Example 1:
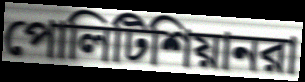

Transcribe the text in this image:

পোলিটিশিয়ানরা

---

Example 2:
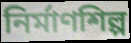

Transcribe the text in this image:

নির্মাণশিল্প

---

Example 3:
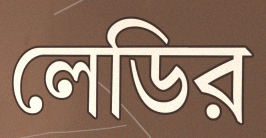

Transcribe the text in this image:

লেডির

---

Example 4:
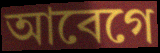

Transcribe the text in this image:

আবেগে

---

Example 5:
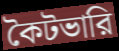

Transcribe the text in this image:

কৈটভারি